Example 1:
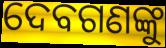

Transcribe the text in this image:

ଦେବଗଣଙ୍କୁ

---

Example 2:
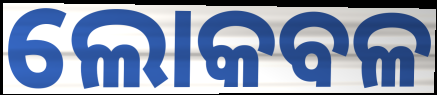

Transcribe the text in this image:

ଲୋକବଳ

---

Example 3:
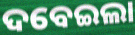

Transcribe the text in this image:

ଦବେଇଲା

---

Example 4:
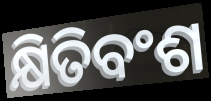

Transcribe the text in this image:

କ୍ଷିତିବଂଶ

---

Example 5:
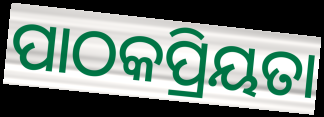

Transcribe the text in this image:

ପାଠକପ୍ରିୟତା